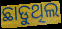
ଛାଡୁଥିଲ